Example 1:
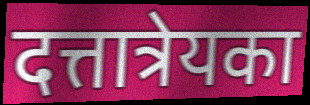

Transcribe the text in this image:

दत्तात्रेयका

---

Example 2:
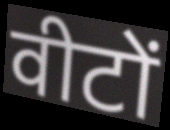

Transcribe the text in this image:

वीटों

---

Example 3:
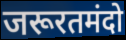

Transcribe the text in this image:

जरूरतमंदो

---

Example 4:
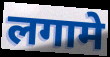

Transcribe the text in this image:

लगामे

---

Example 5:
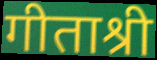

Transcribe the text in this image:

गीताश्री